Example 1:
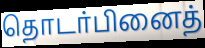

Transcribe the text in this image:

தொடர்பினைத்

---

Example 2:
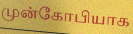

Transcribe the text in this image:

முன்கோபியாக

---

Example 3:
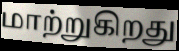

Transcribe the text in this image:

மாற்றுகிறது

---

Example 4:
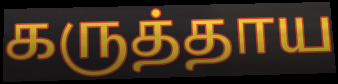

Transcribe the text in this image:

கருத்தாய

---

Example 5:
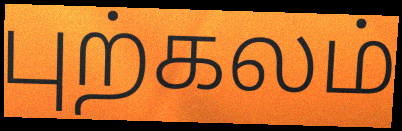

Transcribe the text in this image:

புற்கலம்